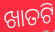
ଖାତଟି